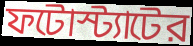
ফটোস্ট্যাটের